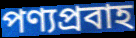
পণ্যপ্রবাহ